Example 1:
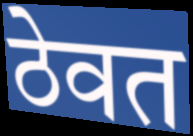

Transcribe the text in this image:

ठेवत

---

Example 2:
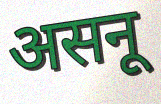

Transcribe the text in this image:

असनू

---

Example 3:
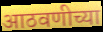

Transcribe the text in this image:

आठवणीच्या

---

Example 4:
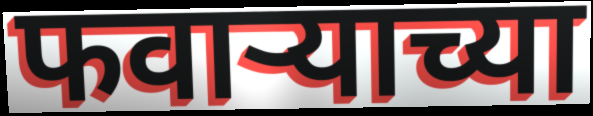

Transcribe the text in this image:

फवाऱ्याच्या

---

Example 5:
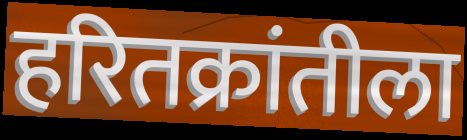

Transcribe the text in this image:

हरितक्रांतीला